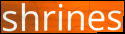
shrines